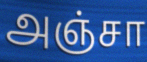
அஞ்சா